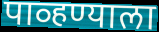
पाव्हण्याला